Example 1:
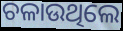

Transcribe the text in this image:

ଚଳାଉଥିଲେ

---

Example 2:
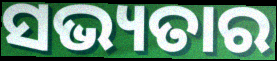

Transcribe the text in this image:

ସଭ୍ୟତାର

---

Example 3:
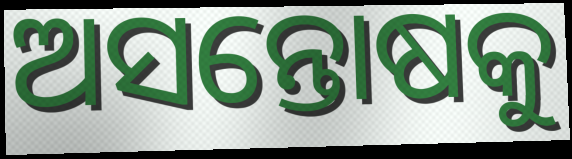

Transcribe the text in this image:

ଅସନ୍ତୋଷକୁ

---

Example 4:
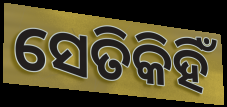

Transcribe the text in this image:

ସେତିକିହିଁ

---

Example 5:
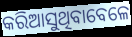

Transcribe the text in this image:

କରିଆସୁଥିବାବେଳେ